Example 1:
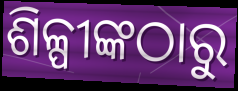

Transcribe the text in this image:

ଶିଳ୍ପୀଙ୍କଠାରୁ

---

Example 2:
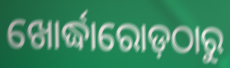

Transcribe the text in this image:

ଖୋର୍ଦ୍ଧାରୋଡ଼ଠାରୁ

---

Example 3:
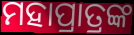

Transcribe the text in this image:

ମହାପ୍ରାତ୍ରଙ୍କ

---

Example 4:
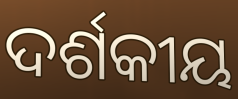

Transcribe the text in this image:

ଦର୍ଶକୀୟ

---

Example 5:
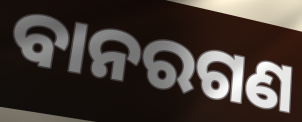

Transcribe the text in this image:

ବାନରଗଣ